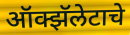
ऑक्झॅलेटाचे